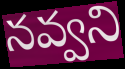
నవ్వని